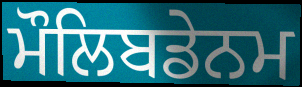
ਮੌਲਿਬਡੇਨਮ